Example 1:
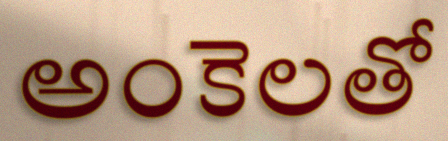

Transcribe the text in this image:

అంకెలతో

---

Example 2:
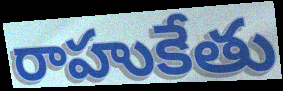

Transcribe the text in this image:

రాహుకేతు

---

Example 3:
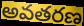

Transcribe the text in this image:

అవతరణ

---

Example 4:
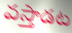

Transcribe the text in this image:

వస్తాడట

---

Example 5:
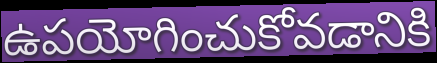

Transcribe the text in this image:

ఉపయోగించుకోవడానికి